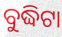
ବୁଦ୍ଧିଟା